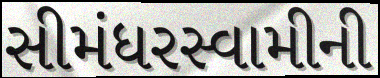
સીમંધરસ્વામીની